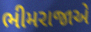
ભીમરાજાએ